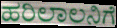
ಹರಿಲಾಲನಿಗೆ